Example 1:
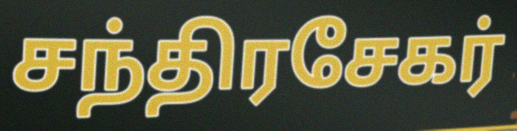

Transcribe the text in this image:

சந்திரசேகர்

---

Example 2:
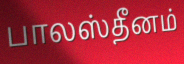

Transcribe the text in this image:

பாலஸ்தீனம்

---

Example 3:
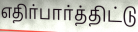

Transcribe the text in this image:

எதிர்பார்த்திட்டு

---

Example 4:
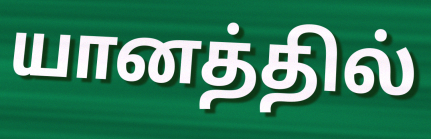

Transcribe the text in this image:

யானத்தில்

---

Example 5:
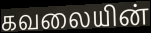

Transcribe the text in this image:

கவலையின்